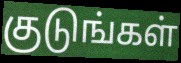
குடுங்கள்